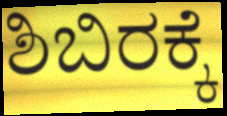
ಶಿಬಿರಕ್ಕೆ